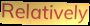
Relatively